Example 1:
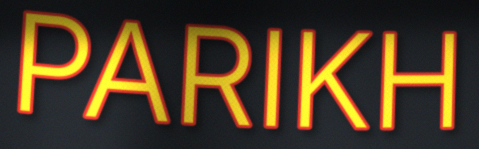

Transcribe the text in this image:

PARIKH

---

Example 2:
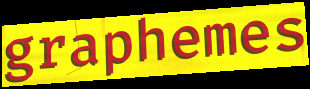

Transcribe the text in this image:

graphemes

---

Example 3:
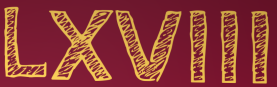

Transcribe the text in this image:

LXVIII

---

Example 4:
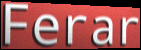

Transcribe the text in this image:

Ferar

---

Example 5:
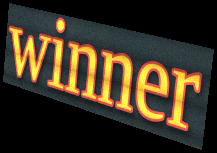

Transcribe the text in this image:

winner